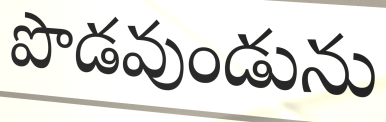
పొడవుండును